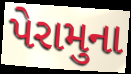
પેરામુના